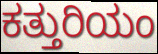
ಕತ್ತುರಿಯಂ